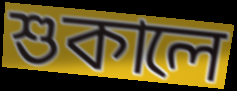
শুকালে